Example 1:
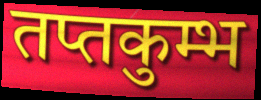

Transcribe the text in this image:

तप्तकुम्भ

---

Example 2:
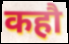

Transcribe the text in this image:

कहौ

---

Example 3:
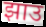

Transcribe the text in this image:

झाउ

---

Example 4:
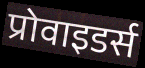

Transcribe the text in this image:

प्रोवाइडर्स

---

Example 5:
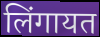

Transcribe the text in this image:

लिंगायत